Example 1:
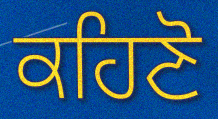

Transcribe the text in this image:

ਕਹਿਣੋ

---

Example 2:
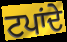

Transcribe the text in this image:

ਟਪਾਂਦੇ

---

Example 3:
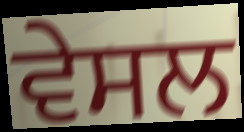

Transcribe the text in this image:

ਵੇਸਲ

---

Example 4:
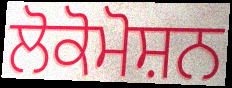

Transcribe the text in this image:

ਲੋਕੋਮੋਸ਼ਨ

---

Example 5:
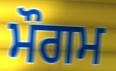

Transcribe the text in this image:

ਮੌਗਮ